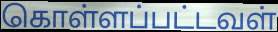
கொள்ளப்பட்டவள்